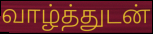
வாழ்த்துடன்